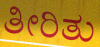
ತೀರಿತು